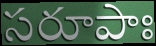
సరూపాః